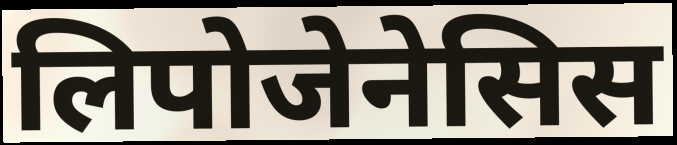
लिपोजेनेसिस